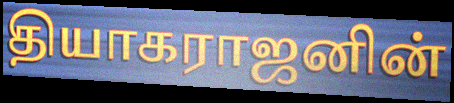
தியாகராஜனின்